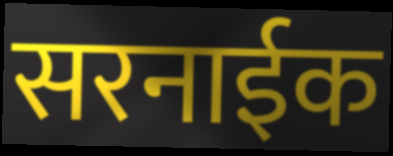
सरनाईक